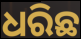
ଧରିଛ